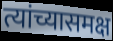
त्यांच्यासमक्ष